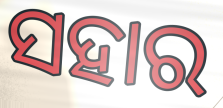
ସହାର